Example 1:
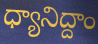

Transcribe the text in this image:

ధ్యానిద్దాం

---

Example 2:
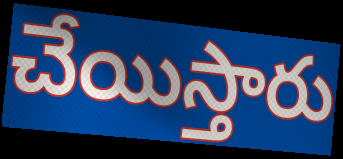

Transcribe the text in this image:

చేయిస్తారు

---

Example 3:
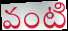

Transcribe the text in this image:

వంటి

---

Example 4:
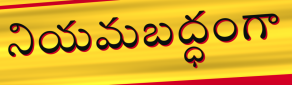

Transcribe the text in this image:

నియమబద్ధంగా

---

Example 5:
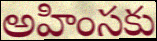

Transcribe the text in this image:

అహింసకు